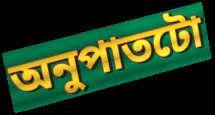
অনুপাতটো